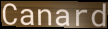
Canard